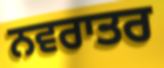
ਨਵਰਾਤਰ